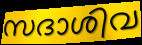
സദാശിവ